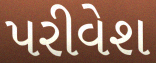
પરીવેશ